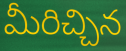
మీరిచ్చిన